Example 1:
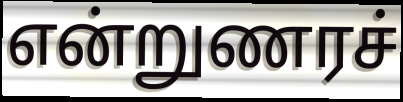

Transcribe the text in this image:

என்றுணரச்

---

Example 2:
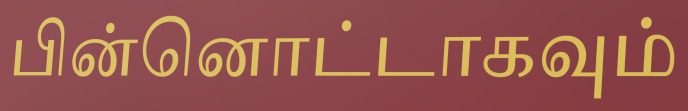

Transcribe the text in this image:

பின்னொட்டாகவும்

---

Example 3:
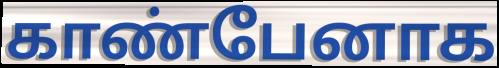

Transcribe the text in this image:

காண்பேனாக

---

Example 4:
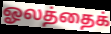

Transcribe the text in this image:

ஓலத்தைக்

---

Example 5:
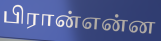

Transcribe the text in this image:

பிரான்என்ன